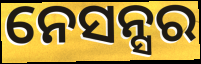
ନେସନ୍ସର